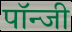
पॉन्जी